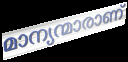
മാന്യന്മാരാണ്